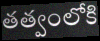
తత్వంలోకి